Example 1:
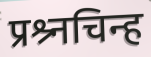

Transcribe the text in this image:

प्रश्र्नचिन्ह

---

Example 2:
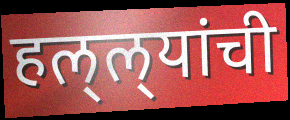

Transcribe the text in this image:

हल्ल्यांची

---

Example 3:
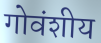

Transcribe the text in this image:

गोवंशीय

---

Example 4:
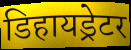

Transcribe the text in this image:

डिहायड्रेटर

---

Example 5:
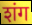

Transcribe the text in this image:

शंग